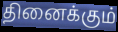
தினைக்கும்